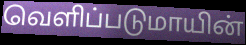
வெளிப்படுமாயின்